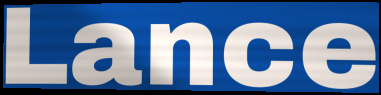
Lance